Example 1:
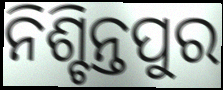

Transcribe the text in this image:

ନିଶ୍ଚିନ୍ତପୁର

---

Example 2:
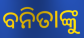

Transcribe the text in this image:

ବନିତାଙ୍କୁ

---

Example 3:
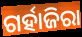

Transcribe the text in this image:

ଗର୍ହାଜିରା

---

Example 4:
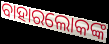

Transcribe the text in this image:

ବାହାରଲୋକଙ୍କ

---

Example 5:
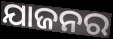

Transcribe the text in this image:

ଯାଜନର